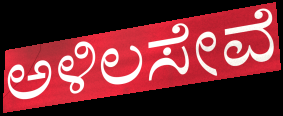
ಅಳಿಲಸೇವೆ